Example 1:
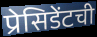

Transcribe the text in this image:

प्रेसिडेंटची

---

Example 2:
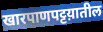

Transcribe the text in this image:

खारपाणपट्टय़ातील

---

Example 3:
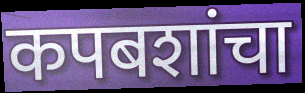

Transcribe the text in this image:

कपबशांचा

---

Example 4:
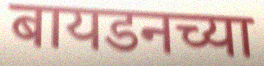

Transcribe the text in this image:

बायडनच्या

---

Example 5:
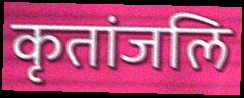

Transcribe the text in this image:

कृतांजलि